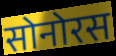
सोनोरस